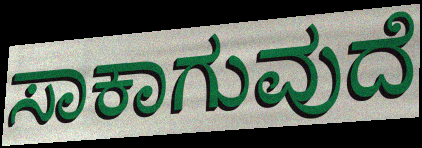
ಸಾಕಾಗುವುದೆ